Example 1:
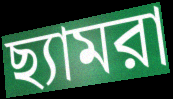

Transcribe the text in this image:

ছ্যামরা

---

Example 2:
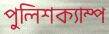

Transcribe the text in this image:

পুলিশক্যাম্প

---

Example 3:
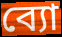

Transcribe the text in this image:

ব্যো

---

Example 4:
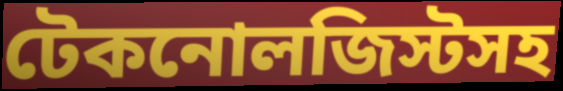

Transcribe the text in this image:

টেকনোলজিস্টসহ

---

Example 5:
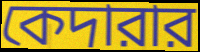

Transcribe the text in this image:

কেদারার